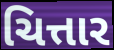
ચિત્તાર